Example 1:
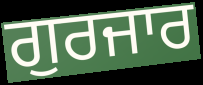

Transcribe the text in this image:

ਗੁਰਜਾਰ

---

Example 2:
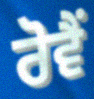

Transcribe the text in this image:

ਰੋਵੈਂ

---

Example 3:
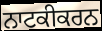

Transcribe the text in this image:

ਨਾਟਕੀਕਰਨ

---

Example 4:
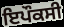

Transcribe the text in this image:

ਇਪੌਕਸੀ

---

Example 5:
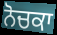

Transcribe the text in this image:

ਨੋਚਕਾ